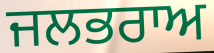
ਜਲਭਰਾਅ